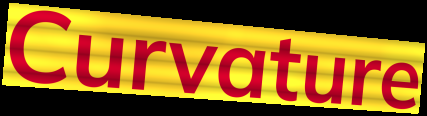
Curvature